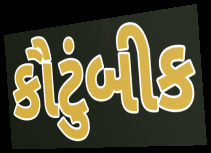
કૌટુંબીક